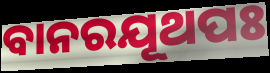
ବାନରଯୂଥପଃ